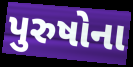
પુરુષોના